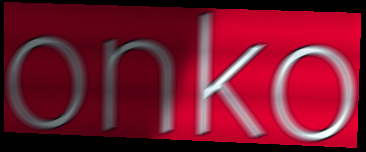
onko